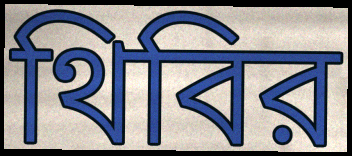
থিবির